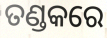
ତଣ୍ଡକରେ